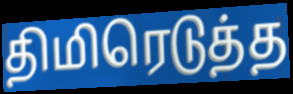
திமிரெடுத்த